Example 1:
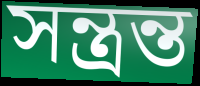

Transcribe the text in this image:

সন্ত্রন্ত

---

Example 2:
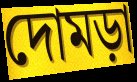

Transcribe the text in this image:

দোমড়া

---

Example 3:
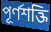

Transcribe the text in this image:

পূর্ণশক্তি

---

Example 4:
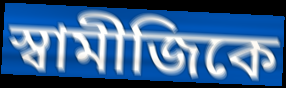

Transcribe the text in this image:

স্বামীজিকে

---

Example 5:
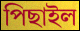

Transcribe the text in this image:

পিছাইল